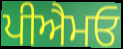
ਪੀਐਮਓ